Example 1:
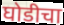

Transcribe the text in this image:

घोडीचा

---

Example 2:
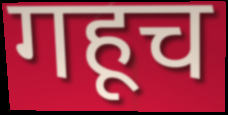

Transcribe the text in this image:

गहूच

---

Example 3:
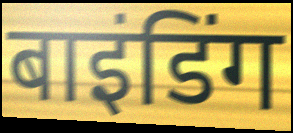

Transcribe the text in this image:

बाइंडिंग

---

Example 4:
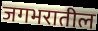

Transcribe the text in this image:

जगभरातील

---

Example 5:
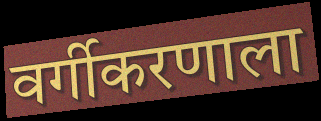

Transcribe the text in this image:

वर्गीकरणाला